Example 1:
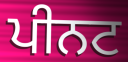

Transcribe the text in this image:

ਪੀਨਟ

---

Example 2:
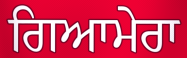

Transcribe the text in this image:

ਗਿਆਮੇਰਾ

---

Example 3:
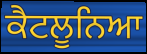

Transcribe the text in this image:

ਕੈਟਲੂਨਿਆ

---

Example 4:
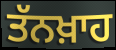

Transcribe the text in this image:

ਤੱਨਖ਼ਾਹ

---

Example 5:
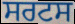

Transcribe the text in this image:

ਸਰਟਸ